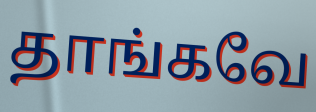
தாங்கவே